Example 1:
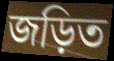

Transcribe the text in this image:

জড়িত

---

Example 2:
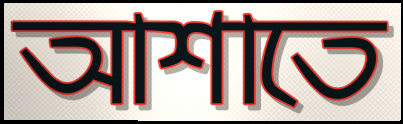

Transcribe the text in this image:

আশাতে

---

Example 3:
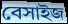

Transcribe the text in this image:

বেসাইজ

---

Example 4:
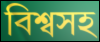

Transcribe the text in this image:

বিশ্বসহ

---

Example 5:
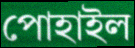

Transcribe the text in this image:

পোহাইল